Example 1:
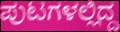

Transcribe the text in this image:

ಪುಟಗಳಲ್ಲಿದ್ದ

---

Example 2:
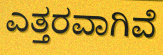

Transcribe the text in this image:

ಎತ್ತರವಾಗಿವೆ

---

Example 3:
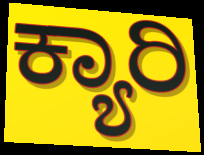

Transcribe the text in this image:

ಕ್ಯಾರಿ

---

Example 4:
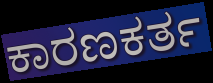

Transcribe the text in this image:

ಕಾರಣಕರ್ತ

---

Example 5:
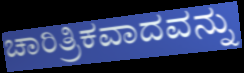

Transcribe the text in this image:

ಚಾರಿತ್ರಿಕವಾದವನ್ನು